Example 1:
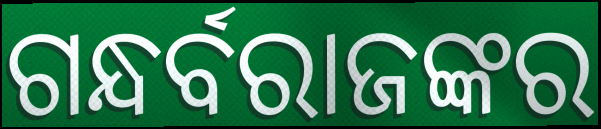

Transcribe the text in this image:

ଗନ୍ଧର୍ବରାଜଙ୍କର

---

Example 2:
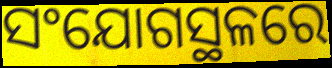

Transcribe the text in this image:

ସଂଯୋଗସ୍ଥଳରେ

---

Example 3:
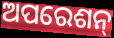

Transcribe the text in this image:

ଅପରେଶନ୍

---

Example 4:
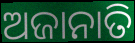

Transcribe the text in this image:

ଅଜାନାତି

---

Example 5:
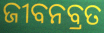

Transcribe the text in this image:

ଜୀବନବ୍ରତ